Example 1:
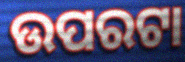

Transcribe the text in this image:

ଉପରଟା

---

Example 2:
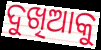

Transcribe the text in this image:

ଦୁଖିଆକୁ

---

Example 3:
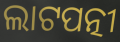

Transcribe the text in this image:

ଲାଟପତ୍ନୀ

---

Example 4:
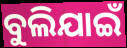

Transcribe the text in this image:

ବୁଲିଯାଇଁ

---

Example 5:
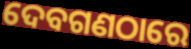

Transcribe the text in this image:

ଦେବଗଣଠାରେ